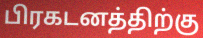
பிரகடனத்திற்கு